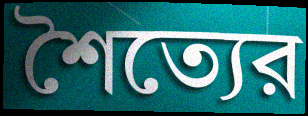
শৈত্যের